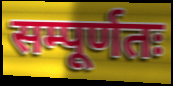
सम्पूर्णतः